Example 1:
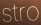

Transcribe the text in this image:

stro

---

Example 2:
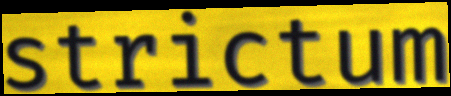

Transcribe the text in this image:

strictum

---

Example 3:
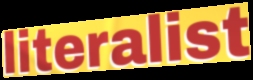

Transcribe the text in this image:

literalist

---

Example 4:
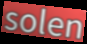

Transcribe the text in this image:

solen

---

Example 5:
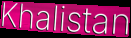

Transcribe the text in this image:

Khalistan